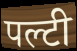
पल्टी